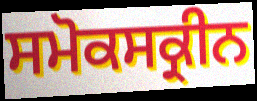
ਸਮੋਕਸਕ੍ਰੀਨ